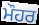
ਮੌਹਰ